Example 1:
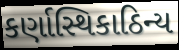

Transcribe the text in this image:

કર્ણાસ્થિકાઠિન્ય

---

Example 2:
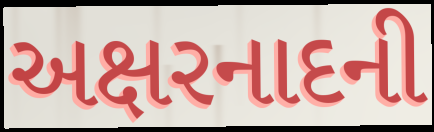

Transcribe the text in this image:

અક્ષરનાદની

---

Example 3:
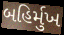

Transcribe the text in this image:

બહિર્મુખ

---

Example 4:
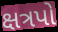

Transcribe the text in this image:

ક્ષત્રપો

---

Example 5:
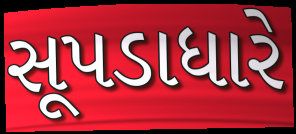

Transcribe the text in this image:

સૂપડાધારે